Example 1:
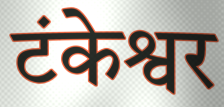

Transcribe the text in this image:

टंकेश्वर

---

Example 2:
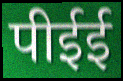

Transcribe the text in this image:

पीईई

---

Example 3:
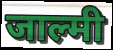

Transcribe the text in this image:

जाल्मी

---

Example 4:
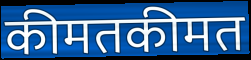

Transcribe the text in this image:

कीमतकीमत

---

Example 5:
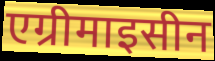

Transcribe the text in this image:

एग्रीमाइसीन